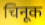
चिनूक